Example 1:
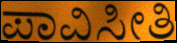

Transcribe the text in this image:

ಪಾವಿಸೀತಿ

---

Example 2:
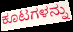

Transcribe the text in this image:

ಕೂಟಗಳನ್ನು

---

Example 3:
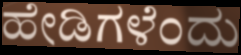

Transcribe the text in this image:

ಹೇಡಿಗಳೆಂದು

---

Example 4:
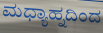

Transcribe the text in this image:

ಮಧ್ಯಾಹ್ನದಿಂದ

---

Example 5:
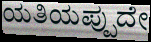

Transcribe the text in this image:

ಯತಿಯಪ್ಪುದೇ